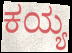
ಕಯ್ಯ